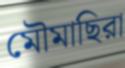
মৌমাছিরা